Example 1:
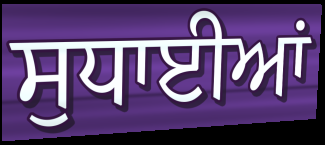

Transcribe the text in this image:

ਸੁਧਾਈਆਂ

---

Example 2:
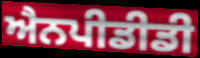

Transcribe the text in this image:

ਐਨਪੀਡੀਡੀ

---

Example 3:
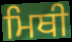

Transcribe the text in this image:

ਮਿਥੀ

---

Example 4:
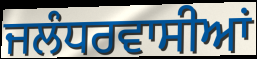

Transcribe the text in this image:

ਜਲੰਧਰਵਾਸੀਆਂ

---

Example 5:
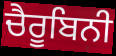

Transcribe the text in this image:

ਚੈਰੂਬਿਨੀ